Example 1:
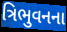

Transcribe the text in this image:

ત્રિભુવનના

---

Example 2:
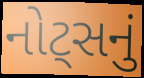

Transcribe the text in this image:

નોટ્સનું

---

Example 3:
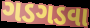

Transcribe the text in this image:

ગડગડવા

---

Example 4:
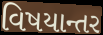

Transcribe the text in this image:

વિષયાન્તર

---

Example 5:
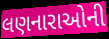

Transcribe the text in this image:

લણનારાઓની